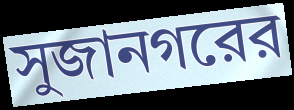
সুজানগরের